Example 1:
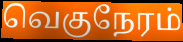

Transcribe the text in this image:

வெகுநேரம்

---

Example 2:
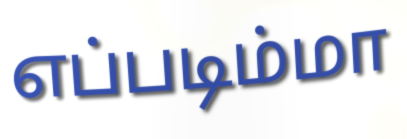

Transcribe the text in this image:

எப்படிம்மா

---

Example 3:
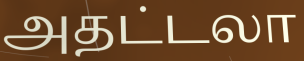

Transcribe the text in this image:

அதட்டலா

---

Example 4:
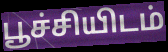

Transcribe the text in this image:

பூச்சியிடம்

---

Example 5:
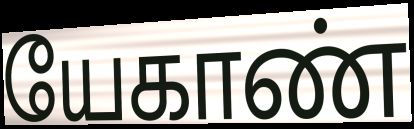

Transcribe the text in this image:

யேகாண்